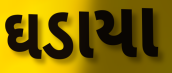
ઘડાયા